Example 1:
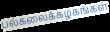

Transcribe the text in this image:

பல்கலைக்கழகங்கள்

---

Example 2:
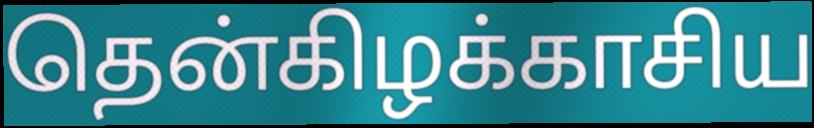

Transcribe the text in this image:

தென்கிழக்காசிய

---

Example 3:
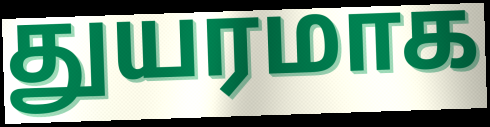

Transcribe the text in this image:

துயரமாக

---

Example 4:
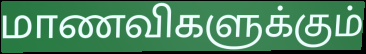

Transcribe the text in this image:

மாணவிகளுக்கும்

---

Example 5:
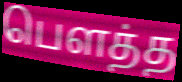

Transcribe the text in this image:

பௌத்த